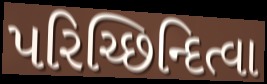
પરિચ્છિન્દિત્વા